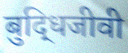
बुद्धिजीवी